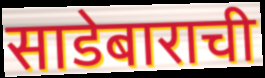
साडेबाराची